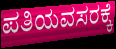
ಪತಿಯವಸರಕ್ಕೆ